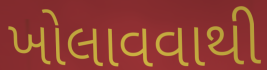
ખોલાવવાથી